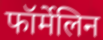
फॉर्मेलिन